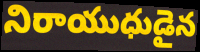
నిరాయుధుడైన